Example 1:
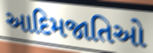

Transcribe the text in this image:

આદિમજાતિઓ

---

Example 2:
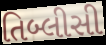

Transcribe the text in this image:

તિબ્લીસી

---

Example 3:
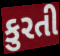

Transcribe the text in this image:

કુરતી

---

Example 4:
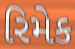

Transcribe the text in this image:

રિમેક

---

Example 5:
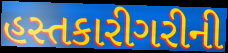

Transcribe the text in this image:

હસ્તકારીગરીની